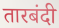
तारबंदी